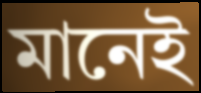
মানেই